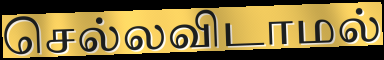
செல்லவிடாமல்